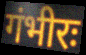
गंभीरः